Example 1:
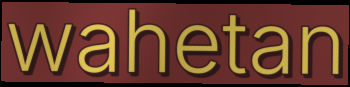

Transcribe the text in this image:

wahetan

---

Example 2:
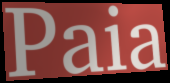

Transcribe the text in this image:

Paia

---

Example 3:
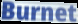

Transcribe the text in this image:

Burnet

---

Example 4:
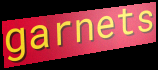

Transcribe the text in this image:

garnets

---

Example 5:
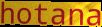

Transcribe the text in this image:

hotana